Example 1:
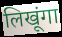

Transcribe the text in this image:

लिखूंगा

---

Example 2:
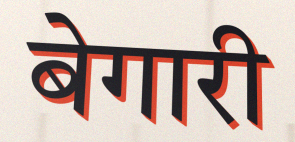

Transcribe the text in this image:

बेगारी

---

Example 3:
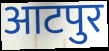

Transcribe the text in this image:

आटपुर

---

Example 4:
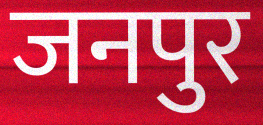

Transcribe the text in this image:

जनपुर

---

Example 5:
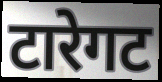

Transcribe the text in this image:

टारेगट